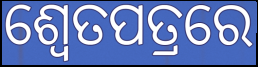
ଶ୍ୱେତପତ୍ରରେ